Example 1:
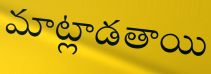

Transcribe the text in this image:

మాట్లాడతాయి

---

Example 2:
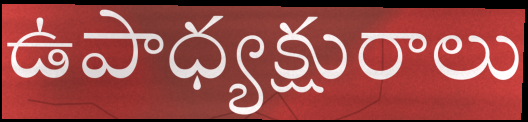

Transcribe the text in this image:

ఉపాధ్యక్షురాలు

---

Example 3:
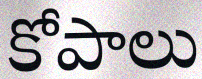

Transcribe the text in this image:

కోపాలు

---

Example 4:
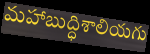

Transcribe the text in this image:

మహాబుద్ధిశాలియగు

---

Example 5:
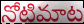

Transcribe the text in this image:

నోటిమాట